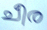
ചീര